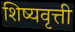
शिष्यवृत्ती